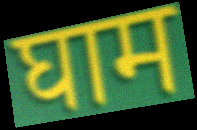
घाम